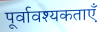
पूर्वावश्यकताएँ